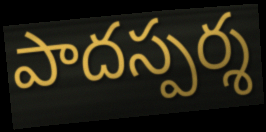
పాదస్పర్శ